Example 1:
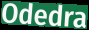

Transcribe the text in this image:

Odedra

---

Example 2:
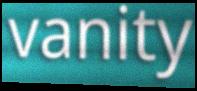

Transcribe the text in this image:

vanity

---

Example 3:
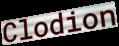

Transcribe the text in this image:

Clodion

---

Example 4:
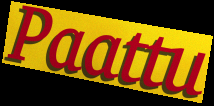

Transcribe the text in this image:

Paattu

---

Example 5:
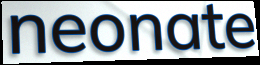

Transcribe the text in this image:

neonate